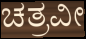
ಚತ್ರವೀ